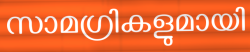
സാമഗ്രികളുമായി